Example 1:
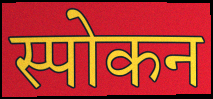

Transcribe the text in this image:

स्पोकन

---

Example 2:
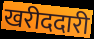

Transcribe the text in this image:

खरीददारी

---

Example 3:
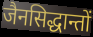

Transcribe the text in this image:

जैनसिद्धान्तों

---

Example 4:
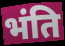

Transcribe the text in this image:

भंति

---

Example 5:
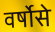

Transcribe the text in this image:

वर्षोसे